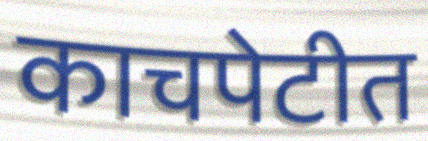
काचपेटीत